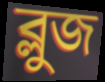
ব্লুজ